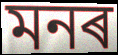
মনৰ